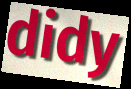
didy